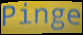
Pinge